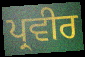
ਪ੍ਰਵੀਰ